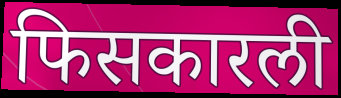
फिसकारली